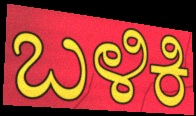
ಬಳಿಕಿ